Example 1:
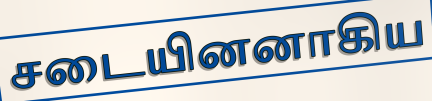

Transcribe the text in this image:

சடையினனாகிய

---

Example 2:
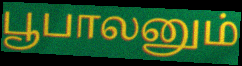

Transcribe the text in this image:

பூபாலனும்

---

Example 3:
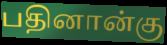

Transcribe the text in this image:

பதினான்கு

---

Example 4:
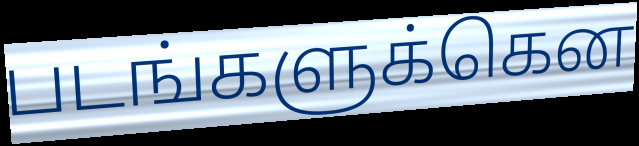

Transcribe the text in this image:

படங்களுக்கென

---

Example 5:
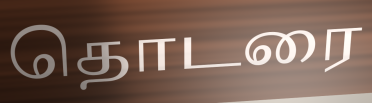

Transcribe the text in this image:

தொடரை